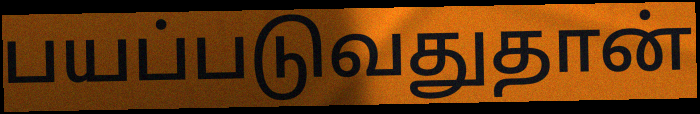
பயப்படுவதுதான்